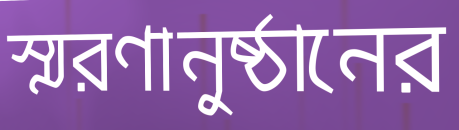
স্মরণানুষ্ঠানের